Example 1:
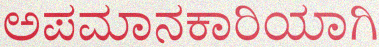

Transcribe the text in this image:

ಅಪಮಾನಕಾರಿಯಾಗಿ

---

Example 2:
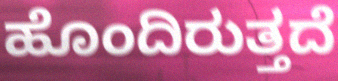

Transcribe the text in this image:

ಹೊಂದಿರುತ್ತದೆ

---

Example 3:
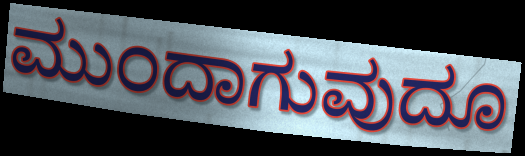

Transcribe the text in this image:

ಮುಂದಾಗುವುದೂ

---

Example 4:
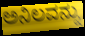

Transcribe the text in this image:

ಅನಿಲವನ್ನು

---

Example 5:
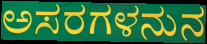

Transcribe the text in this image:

ಅಸರಗಳನುನ